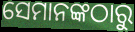
ସେମାନଙ୍କଠାରୁ